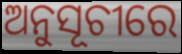
ଅନୁସୂଚୀରେ